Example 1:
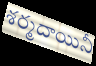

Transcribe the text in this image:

శర్మదాయినీ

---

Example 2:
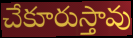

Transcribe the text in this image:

చేకూరుస్తావు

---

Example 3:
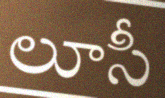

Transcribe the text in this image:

లూసీ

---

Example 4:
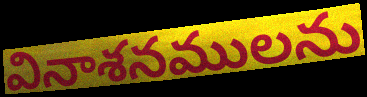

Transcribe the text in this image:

వినాశనములను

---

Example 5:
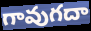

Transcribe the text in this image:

గావుగదా